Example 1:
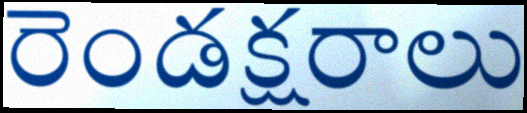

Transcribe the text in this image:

రెండక్షరాలు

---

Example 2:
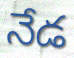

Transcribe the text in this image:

నేడ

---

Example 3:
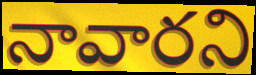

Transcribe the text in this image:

నావారని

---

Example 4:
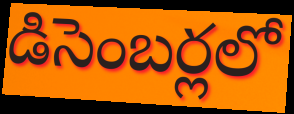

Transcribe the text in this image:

డిసెంబర్లలో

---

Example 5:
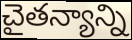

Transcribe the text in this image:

చైతన్యాన్ని